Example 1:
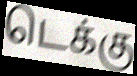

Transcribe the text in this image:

டெக்கு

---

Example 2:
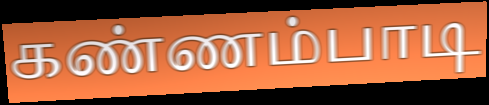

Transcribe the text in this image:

கண்ணம்பாடி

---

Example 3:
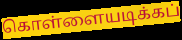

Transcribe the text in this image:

கொள்ளையடிக்கப்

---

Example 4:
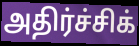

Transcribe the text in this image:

அதிர்ச்சிக்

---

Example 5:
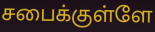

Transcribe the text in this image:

சபைக்குள்ளே